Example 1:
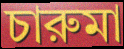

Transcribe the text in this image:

চারুমা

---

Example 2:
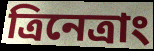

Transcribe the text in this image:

ত্রিনেত্রাং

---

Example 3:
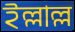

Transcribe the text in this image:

ইল্লাল্ল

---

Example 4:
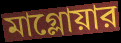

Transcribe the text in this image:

মাগ্লোয়ার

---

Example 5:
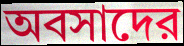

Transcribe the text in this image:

অবসাদের